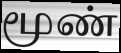
மூண்